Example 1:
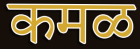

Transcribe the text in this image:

कमळ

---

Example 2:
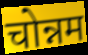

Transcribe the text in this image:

चोन्नम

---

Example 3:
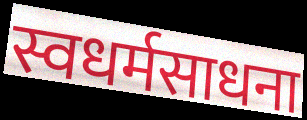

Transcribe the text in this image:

स्वधर्मसाधना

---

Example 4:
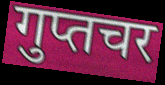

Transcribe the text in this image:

गुप्तचर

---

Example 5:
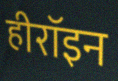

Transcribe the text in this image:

हीरॉइन